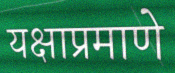
यक्षाप्रमाणे